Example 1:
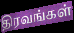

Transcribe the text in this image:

திரவங்கள்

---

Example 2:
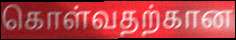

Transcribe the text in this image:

கொள்வதற்கான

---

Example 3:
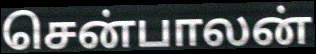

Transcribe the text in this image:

சென்பாலன்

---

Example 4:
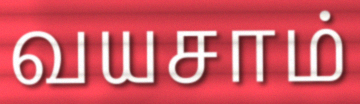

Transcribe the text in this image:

வயசாம்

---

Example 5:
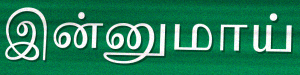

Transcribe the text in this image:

இன்னுமாய்